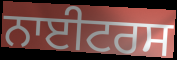
ਨਾਈਟਰਸ